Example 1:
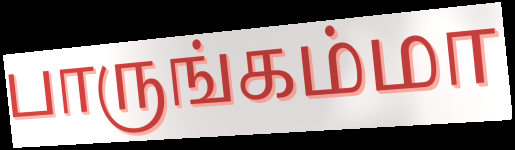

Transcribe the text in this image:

பாருங்கம்மா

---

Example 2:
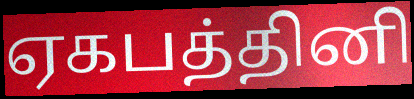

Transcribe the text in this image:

ஏகபத்தினி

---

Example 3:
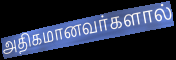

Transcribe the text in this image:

அதிகமானவர்களால்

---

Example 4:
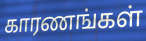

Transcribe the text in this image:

காரணங்கள்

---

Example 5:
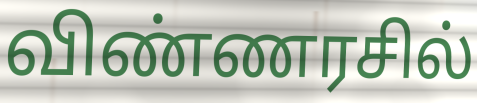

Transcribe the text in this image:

விண்ணரசில்